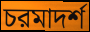
চরমাদর্শ